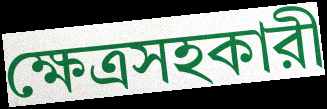
ক্ষেত্রসহকারী